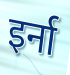
इर्ना